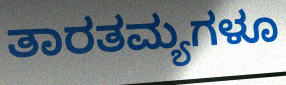
ತಾರತಮ್ಯಗಳೂ